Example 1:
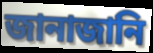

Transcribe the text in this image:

জানাজানি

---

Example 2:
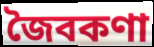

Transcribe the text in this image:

জৈবকণা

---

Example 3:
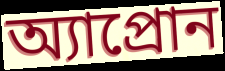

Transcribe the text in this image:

অ্যাপ্রোন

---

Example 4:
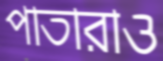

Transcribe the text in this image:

পাতারাও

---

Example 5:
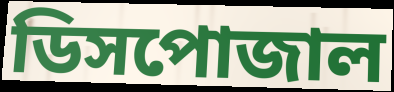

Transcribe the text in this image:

ডিসপোজাল